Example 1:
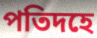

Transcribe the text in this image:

পতিদহে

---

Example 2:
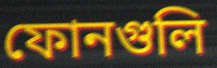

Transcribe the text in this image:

ফোনগুলি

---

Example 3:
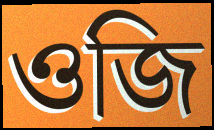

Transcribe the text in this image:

ওজি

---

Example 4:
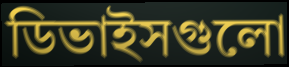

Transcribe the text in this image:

ডিভাইসগুলো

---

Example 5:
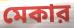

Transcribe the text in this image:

মেকার